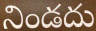
నిండదు